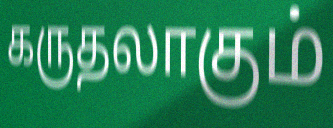
கருதலாகும்